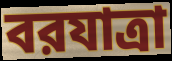
বরযাত্রা